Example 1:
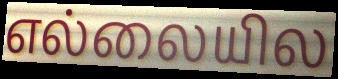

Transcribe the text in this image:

எல்லையில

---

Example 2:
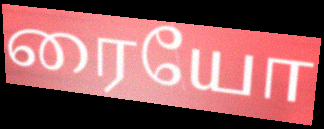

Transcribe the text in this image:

ரையோ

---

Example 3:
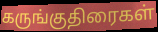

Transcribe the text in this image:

கருங்குதிரைகள்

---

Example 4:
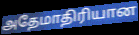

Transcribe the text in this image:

அதேமாதிரியான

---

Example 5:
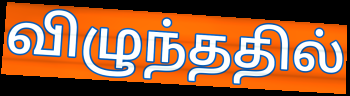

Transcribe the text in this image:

விழுந்ததில்